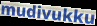
mudivukku